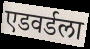
एडवर्डला